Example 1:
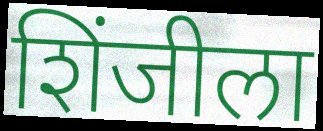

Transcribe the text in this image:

शिंजीला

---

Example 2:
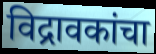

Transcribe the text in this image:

विद्रावकांचा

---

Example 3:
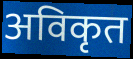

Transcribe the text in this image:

अविकृत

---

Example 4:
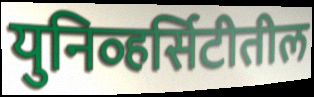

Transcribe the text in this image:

युनिव्हर्सिटीतील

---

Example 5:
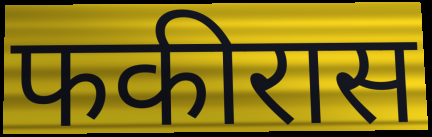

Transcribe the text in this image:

फकीरास